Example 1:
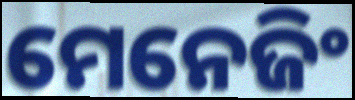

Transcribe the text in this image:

ମେନେଜିଂ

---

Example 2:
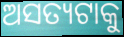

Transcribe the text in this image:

ଅସତ୍ୟଟାକୁ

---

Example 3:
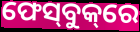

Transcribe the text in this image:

ଫେସ୍‌ବୁକ୍‌ରେ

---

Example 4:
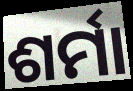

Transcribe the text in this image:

ଶର୍ମା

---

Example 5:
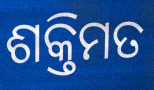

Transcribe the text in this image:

ଶକ୍ତିମତ